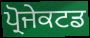
ਪ੍ਰੋਜੇਕਟਡ